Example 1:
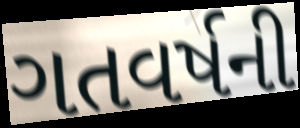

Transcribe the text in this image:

ગતવર્ષની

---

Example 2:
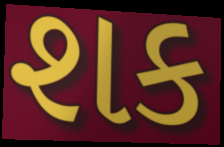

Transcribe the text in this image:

શક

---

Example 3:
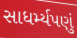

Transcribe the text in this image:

સાધર્મ્યપણું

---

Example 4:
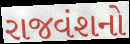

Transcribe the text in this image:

રાજવંશનો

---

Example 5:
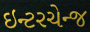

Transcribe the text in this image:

ઇન્ટરચેન્જ